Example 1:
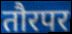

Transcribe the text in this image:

तौरपर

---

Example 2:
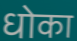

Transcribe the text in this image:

धोका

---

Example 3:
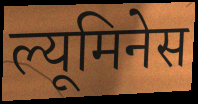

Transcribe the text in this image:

ल्यूमिनेस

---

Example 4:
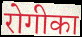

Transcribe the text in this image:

रोगीका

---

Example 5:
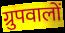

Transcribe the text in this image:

ग्रुपवालों